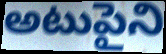
అటుపైని